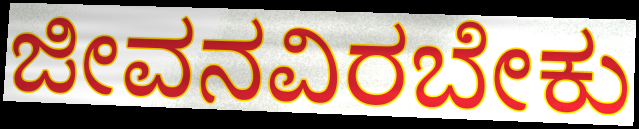
ಜೀವನವಿರಬೇಕು